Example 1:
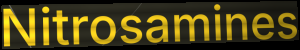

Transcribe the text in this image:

Nitrosamines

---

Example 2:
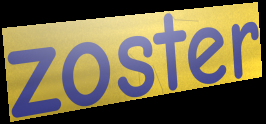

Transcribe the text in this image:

zoster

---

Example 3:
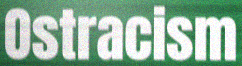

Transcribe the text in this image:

Ostracism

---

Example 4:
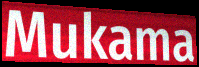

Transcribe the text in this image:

Mukama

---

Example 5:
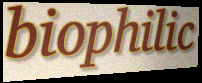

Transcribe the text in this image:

biophilic